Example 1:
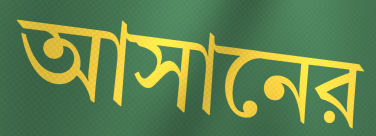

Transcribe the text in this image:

আসানের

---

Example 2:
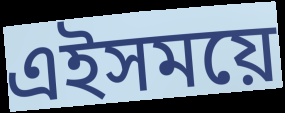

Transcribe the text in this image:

এইসময়ে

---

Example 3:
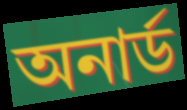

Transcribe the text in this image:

অনার্ড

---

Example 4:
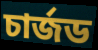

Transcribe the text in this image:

চার্জড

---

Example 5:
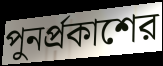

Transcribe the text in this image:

পুনর্প্রকাশের